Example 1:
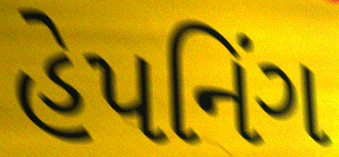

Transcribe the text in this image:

હેપનિંગ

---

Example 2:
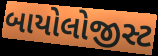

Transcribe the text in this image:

બાયોલોજીસ્ટ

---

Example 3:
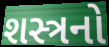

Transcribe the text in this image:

શસ્ત્રનો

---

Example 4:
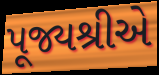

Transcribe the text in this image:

પૂજ્યશ્રીએ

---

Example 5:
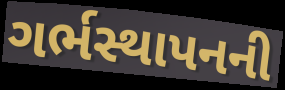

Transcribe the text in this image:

ગર્ભસ્થાપનની